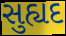
સુહ્યદ